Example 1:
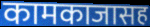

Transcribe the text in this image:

कामकाजासह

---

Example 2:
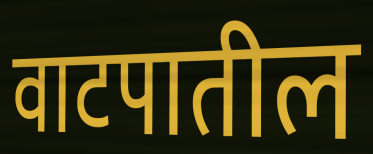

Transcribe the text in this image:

वाटपातील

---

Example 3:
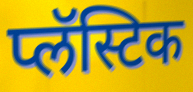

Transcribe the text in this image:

प्लॅस्टिक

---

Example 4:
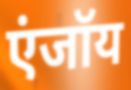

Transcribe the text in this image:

एंजॉय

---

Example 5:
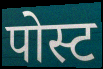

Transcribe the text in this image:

पोस्ट